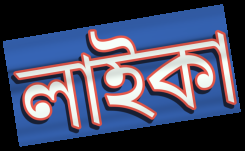
লাইকা